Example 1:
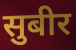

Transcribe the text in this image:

सुबीर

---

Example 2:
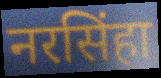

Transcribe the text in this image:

नरसिंहा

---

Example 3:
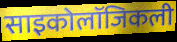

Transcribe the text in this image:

साइकोलॉजिकली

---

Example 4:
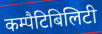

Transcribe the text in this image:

कम्पैटिबिलिटी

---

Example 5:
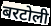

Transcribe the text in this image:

बरटोली